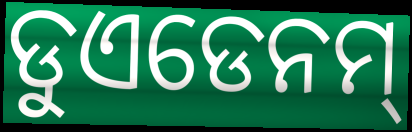
ଡୁଏଡେନମ୍